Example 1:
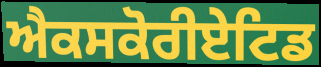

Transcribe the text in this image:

ਐਕਸਕੋਰੀਏਟਿਡ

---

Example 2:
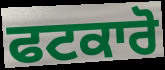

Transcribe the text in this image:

ਫਟਕਾਰੋ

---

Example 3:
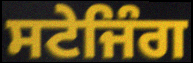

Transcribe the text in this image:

ਸਟੇਜਿੰਗ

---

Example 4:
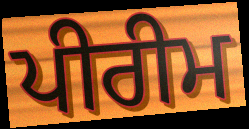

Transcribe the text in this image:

ਪੀਰੀਮ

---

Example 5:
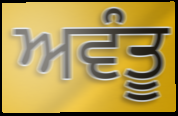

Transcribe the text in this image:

ਅਵੰਤੂ